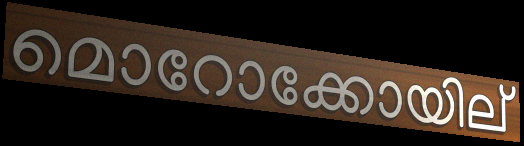
മൊറോക്കോയില്